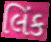
લિંક